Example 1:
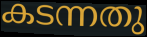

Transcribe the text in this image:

കടന്നതു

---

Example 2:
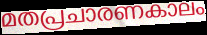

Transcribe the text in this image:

മതപ്രചാരണകാലം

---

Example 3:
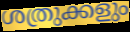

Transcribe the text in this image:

ശത്രുക്കളും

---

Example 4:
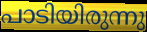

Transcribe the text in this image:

പാടിയിരുന്നു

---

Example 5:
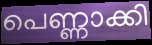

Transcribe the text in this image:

പെണ്ണാക്കി